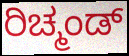
ರಿಚ್ಮಂಡ್